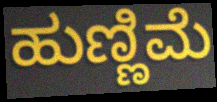
ಹುಣ್ಣಿಮೆ